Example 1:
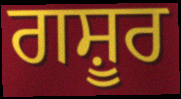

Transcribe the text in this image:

ਗਸ਼ੂਰ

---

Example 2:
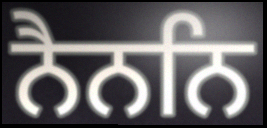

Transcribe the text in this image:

ਨੈਨਨਿ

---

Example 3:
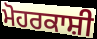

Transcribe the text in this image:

ਮੋਹਰਕਾਸ਼ੀ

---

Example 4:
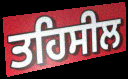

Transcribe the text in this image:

ਤਹਿਸੀਲ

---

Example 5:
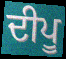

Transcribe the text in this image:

ਦੀਪੂ